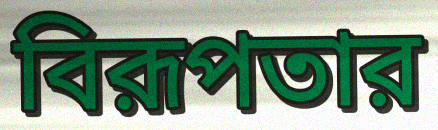
বিরূপতার